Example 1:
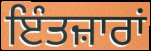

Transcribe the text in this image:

ਇੰਤਜ਼ਾਰਾਂ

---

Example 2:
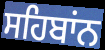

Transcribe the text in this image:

ਸਹਿਬਾਂਨ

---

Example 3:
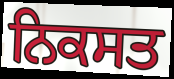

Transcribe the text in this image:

ਨਿਕਸਤ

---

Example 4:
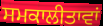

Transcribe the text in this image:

ਸਮਕਾਲੀਤਾਵਾਂ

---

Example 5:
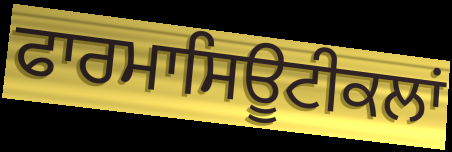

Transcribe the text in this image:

ਫਾਰਮਾਸਿਊਟੀਕਲਾਂ